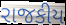
રાજકીય